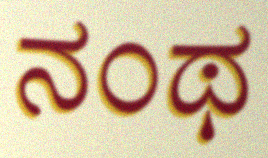
ನಂಥ